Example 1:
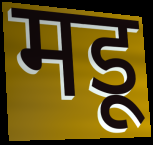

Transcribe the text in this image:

मडू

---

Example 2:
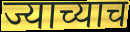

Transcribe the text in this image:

ज्याच्याच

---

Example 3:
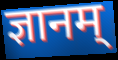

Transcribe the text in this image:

ज्ञानम्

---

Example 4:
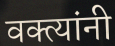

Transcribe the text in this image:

वक्त्यांनी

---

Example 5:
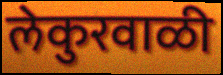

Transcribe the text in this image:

लेकुरवाळी